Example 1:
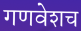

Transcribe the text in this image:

गणवेशच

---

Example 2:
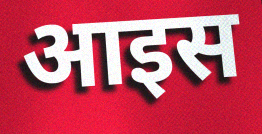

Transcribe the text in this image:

आइस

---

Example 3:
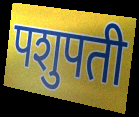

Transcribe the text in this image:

पशुपती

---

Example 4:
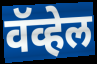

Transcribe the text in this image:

वॅव्हेल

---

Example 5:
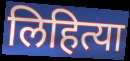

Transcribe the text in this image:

लिहित्या